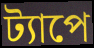
ট্যাপে